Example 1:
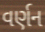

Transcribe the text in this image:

વર્ણન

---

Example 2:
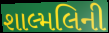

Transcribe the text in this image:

શાલ્મલિની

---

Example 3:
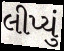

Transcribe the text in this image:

લીપ્યું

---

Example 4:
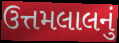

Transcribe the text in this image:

ઉત્તમલાલનું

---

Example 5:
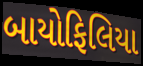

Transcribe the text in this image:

બાયોફિલિયા